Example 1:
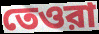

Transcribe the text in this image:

তেওরা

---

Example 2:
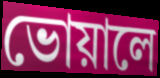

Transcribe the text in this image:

ভোয়ালে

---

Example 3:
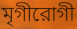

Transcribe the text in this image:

মৃগীরোগী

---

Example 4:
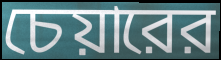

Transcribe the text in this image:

চেয়ারের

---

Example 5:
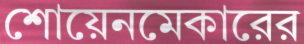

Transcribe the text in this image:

শোয়েনমেকারের